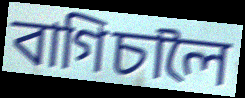
বাগিচালৈ